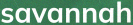
savannah